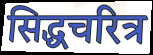
सिद्धचरित्र